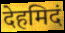
देहमिदं